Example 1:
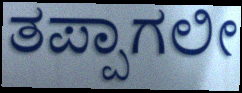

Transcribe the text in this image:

ತಪ್ಪಾಗಲೀ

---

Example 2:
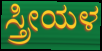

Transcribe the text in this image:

ಸ್ತ್ರೀಯಳ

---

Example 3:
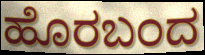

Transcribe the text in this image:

ಹೊರಬಂದ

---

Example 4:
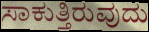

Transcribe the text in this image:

ಸಾಕುತ್ತಿರುವುದು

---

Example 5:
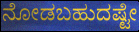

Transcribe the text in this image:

ನೋಡಬಹುದಷ್ಟೇ